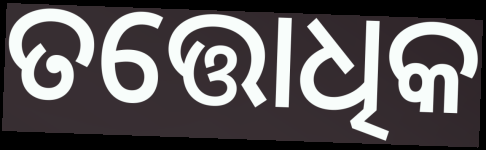
ତତ୍ତୋଧିକ